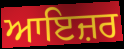
ਆਇਜ਼ਰ